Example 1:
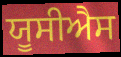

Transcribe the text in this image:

ਯੂਸੀਐਸ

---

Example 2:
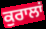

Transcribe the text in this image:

ਕੁਰਾਲਾਂ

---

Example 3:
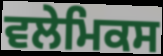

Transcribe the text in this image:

ਵਲੇਮਿਕਸ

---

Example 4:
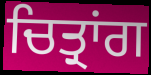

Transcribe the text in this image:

ਚਿਤ੍ਰਾਂਗ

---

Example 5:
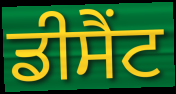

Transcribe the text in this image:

ਡੀਸੈਂਟ